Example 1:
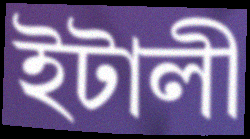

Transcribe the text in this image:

ইটালী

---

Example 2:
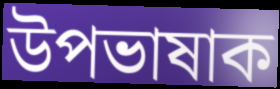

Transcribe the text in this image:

উপভাষাক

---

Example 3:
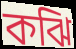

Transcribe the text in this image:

কঝি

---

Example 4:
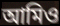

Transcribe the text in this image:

আমিও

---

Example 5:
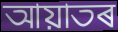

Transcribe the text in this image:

আয়াতৰ